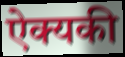
ऐक्यकी